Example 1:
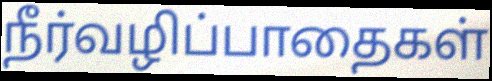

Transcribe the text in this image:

நீர்வழிப்பாதைகள்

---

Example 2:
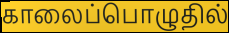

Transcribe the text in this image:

காலைப்பொழுதில்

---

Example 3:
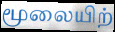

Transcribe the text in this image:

மூலையிற்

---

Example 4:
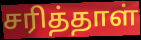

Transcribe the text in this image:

சரித்தாள்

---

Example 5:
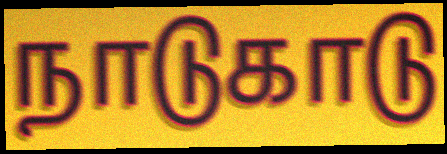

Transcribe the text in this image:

நாடுகாடு